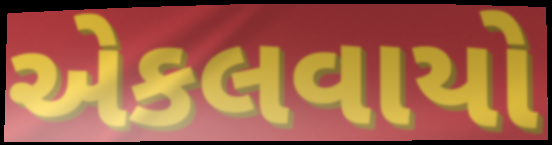
એકલવાયો